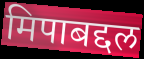
मिपाबद्दल